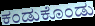
ಕಂಡುಕೊಂಡು